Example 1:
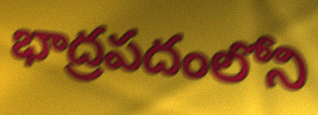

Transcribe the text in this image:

భాద్రపదంలోని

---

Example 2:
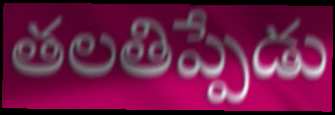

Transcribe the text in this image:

తలతిప్పేడు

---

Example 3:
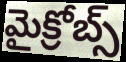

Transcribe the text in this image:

మైక్రోబ్స్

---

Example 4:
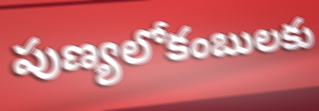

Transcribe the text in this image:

పుణ్యలోకంబులకు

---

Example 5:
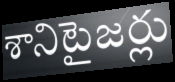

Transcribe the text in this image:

శానిటైజర్లు